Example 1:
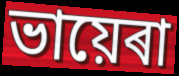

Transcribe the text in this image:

ভায়েৰা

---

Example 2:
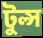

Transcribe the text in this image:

টুল্স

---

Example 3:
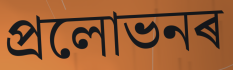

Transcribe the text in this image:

প্ৰলোভনৰ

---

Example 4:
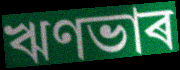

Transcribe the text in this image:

ঋণভাৰ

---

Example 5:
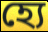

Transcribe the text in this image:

হ্যে